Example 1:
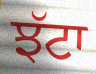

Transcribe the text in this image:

ਝੱਟਾ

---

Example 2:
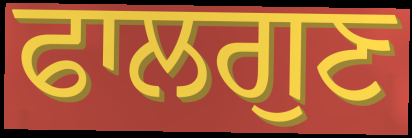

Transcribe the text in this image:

ਫਾਲਗੁਣ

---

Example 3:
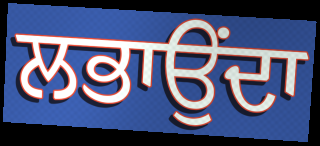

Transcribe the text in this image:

ਲਭਾਉਂਦਾ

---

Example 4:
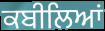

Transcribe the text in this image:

ਕਬੀਲਿਆਂ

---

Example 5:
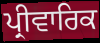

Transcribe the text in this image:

ਪ੍ਰੀਵਾਰਿਕ